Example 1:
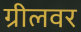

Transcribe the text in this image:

ग्रीलवर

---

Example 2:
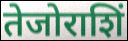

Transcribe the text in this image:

तेजोराशिं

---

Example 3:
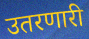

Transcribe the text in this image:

उतरणारी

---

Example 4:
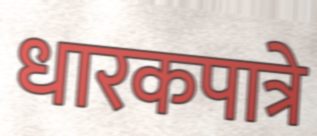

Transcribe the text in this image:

धारकपात्रे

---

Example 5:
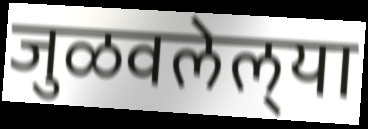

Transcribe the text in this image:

जुळवलेल्या